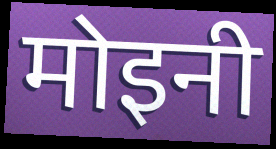
मोइनी